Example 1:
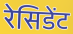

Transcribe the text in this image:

रेसिडेंट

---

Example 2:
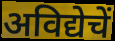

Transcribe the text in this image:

अविद्येचें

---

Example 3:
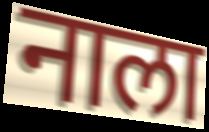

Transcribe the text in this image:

नाला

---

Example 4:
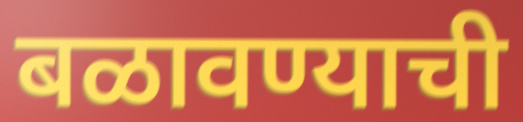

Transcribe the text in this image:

बळावण्याची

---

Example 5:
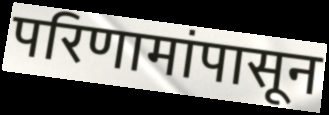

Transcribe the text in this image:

परिणामांपासून